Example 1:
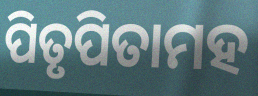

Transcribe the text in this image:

ପିତୃପିତାମହ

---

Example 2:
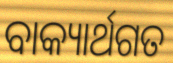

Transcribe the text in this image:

ବାକ୍ୟାର୍ଥଗତ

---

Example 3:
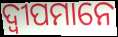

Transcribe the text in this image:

ଦ୍ୱୀପମାନେ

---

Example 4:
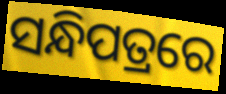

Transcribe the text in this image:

ସନ୍ଧିପତ୍ରରେ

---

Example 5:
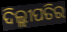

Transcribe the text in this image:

ଦିଲ୍ଲୀପତିର